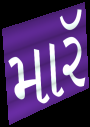
મારૅ